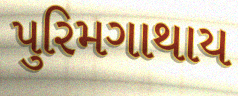
પુરિમગાથાય